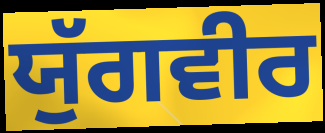
ਯੁੱਗਵੀਰ